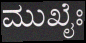
ಮುಖೈಃ